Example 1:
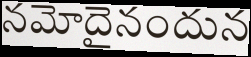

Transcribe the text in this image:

నమోదైనందున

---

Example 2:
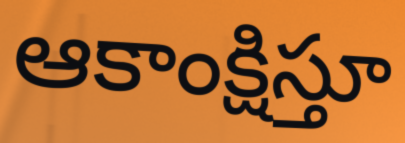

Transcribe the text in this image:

ఆకాంక్షిస్తూ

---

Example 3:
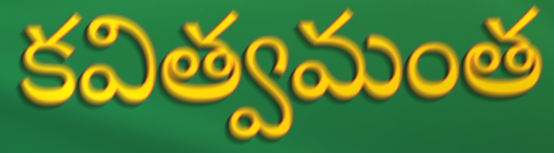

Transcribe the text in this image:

కవిత్వమంత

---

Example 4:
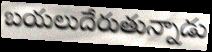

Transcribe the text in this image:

బయలుదేరుతున్నాడు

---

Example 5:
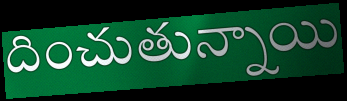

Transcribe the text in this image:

దించుతున్నాయి